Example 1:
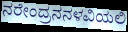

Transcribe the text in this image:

ನರೇಂದ್ರನನಳವಿಯಲಿ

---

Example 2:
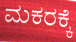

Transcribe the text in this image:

ಮಕರಕ್ಕೆ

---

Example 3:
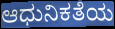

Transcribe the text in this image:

ಆಧುನಿಕತೆಯ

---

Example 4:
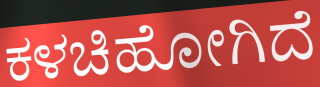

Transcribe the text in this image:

ಕಳಚಿಹೋಗಿದೆ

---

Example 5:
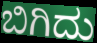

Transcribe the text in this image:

ಬಿಗಿದು